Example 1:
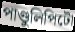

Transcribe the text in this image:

পাণ্ডুলিপিটো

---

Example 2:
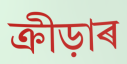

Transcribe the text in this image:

ক্ৰীড়াৰ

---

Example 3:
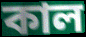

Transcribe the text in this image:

কাল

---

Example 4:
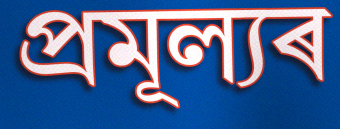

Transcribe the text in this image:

প্ৰমূল্যৰ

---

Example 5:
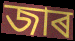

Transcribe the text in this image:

জাৰ